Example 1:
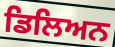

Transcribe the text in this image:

ਡਿਲਿਅਨ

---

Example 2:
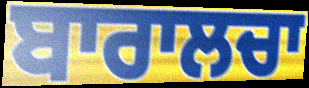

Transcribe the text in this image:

ਬਾਰਾਲਚਾ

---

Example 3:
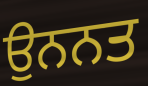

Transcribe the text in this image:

ਉਨਨਤ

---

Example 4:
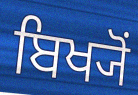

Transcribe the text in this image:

ਬਿਖ੍ਯੋਂ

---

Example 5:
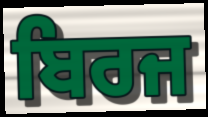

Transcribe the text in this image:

ਬਿਰਜ